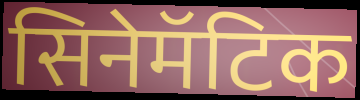
सिनेमॅटिक